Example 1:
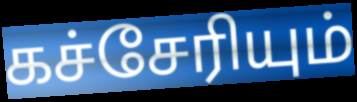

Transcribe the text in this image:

கச்சேரியும்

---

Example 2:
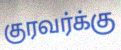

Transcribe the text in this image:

குரவர்க்கு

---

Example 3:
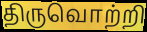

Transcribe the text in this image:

திருவொற்றி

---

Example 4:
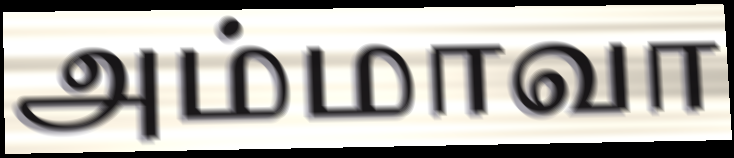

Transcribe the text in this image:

அம்மாவா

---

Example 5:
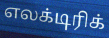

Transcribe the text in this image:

எலக்டிரிக்